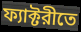
ফ্যাক্টরীতে